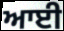
ਆਈ